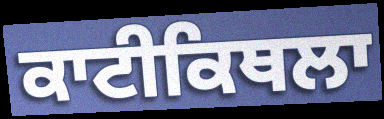
ਕਾਟੀਕਿਥਲਾ